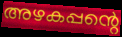
അഴകപ്പന്റെ